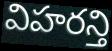
విహరన్తి